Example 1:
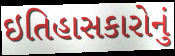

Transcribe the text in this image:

ઇતિહાસકારોનું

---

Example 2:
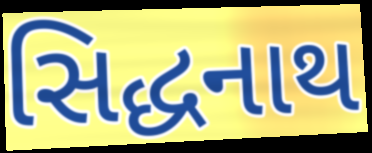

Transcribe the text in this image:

સિદ્ધનાથ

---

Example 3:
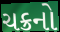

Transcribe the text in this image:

ચક્રનો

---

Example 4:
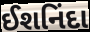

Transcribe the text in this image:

ઈશનિંદા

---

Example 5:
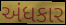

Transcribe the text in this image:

અંધકાર